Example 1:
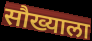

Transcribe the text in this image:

सौख्याला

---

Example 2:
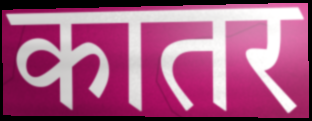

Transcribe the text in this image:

कातर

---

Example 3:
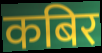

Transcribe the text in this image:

कबिर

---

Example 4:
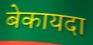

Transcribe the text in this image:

बेकायदा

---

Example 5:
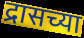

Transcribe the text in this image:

द्रासच्या